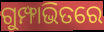
ଗୁମ୍ଫାଭିତରେ